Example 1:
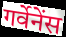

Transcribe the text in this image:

गर्वेनेंस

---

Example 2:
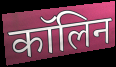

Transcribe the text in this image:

कॉलिन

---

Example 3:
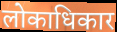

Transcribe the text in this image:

लोकाधिकार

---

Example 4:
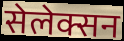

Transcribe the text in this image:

सेलेक्सन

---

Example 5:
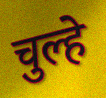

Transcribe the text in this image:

चुल्हे